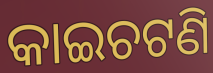
କାଇଚଟଣି